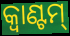
କ୍ୱାଣ୍ଟମ୍